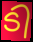
ടി